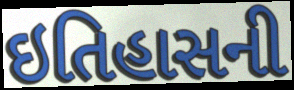
ઇતિહાસની